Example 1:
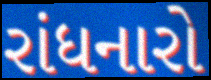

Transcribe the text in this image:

રાંધનારો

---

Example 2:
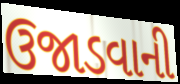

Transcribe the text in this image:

ઉજાડવાની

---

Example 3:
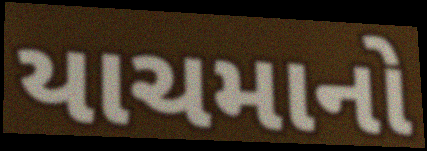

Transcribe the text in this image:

યાચમાનો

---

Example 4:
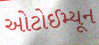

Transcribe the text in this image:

ઓટોઈમ્યૂન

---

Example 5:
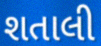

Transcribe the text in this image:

શતાલી